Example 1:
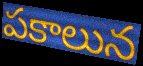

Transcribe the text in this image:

పకాలున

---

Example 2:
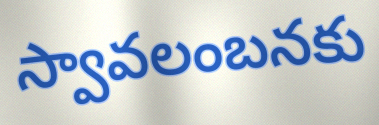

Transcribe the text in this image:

స్వావలంబనకు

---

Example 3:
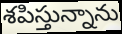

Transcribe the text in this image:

శపిస్తున్నాను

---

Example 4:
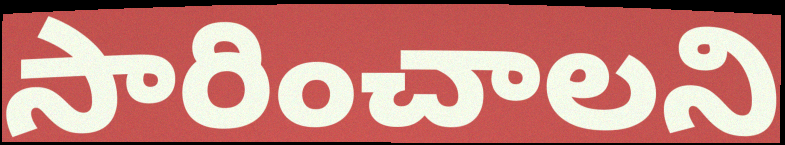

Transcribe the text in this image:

సారించాలని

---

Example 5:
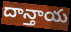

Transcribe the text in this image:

దాన్తాయ